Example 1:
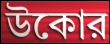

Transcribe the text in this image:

উকোর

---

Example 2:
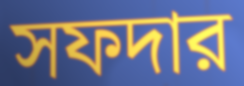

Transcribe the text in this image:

সফদার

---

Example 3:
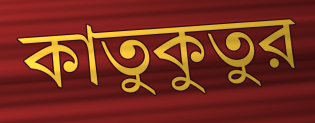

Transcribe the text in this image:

কাতুকুতুর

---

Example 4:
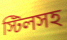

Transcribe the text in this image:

স্টিলসহ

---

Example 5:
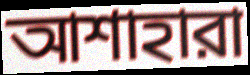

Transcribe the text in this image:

আশাহারা